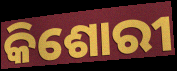
କିଶୋରୀ